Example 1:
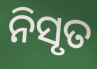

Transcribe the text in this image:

ନିସୃତ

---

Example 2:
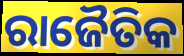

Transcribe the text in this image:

ରାଜୈତିକ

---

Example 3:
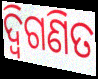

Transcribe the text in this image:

ଦ୍ୱିଗଣିତ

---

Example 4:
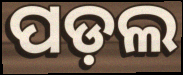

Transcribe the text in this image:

ପଡ଼ଲ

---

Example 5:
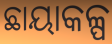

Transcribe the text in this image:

ଛାୟାକଳ୍ପ